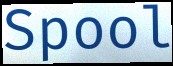
Spool